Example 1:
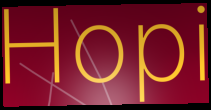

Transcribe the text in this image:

Hopi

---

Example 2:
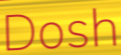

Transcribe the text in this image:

Dosh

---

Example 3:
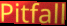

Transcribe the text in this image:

Pitfall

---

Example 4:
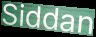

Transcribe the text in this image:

Siddan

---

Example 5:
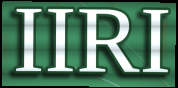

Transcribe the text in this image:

IIRI